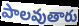
పాలవుతారు